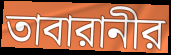
তাবারানীর